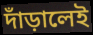
দাঁড়ালেই